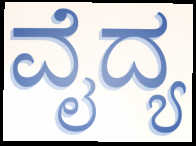
ವೈದ್ಯ